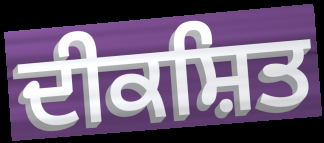
ਦੀਕਸ਼ਿਤ